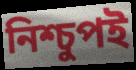
নিশ্চুপই